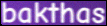
bakthas